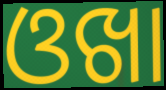
ଓଖା